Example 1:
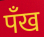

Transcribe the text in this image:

पँख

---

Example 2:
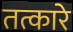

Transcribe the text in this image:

तत्कारे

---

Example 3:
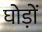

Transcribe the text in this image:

घोड़ों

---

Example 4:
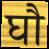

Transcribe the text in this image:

घौ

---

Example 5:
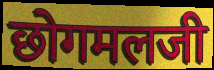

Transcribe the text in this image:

छोगमलजी